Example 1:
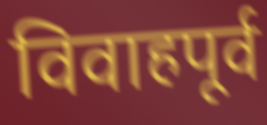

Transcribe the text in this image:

विवाहपूर्व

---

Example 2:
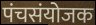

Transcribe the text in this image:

पंचसंयोजक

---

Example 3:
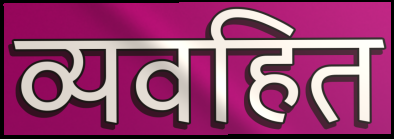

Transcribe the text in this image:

व्यवहित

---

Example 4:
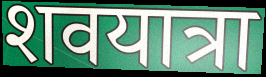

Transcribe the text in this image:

शवयात्रा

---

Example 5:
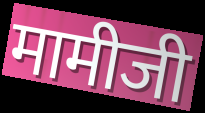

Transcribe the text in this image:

मामीजी